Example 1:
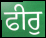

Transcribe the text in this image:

ਫੀਰੁ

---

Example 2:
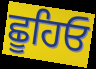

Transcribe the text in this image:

ਛੂਹਿਓ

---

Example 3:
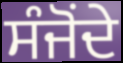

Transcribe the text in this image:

ਸੰਜੋਂਦੇ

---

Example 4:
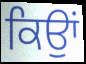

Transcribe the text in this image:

ਕਿਉਾਂ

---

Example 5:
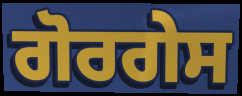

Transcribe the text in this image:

ਗੋਰਗੇਸ